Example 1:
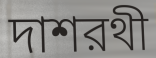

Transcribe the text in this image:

দাশরথী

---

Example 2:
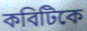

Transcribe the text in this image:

কবিটিকে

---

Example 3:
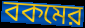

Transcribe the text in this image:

বকমের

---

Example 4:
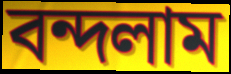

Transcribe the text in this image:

বন্দলাম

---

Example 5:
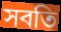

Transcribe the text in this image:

সবতি